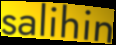
salihin